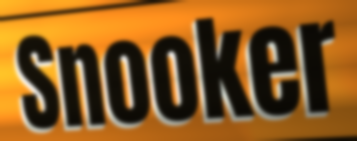
Snooker